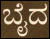
ಬೈದ